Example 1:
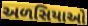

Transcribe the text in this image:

અળસિયાઓ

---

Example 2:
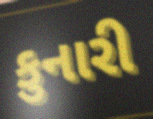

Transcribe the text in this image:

કુનારી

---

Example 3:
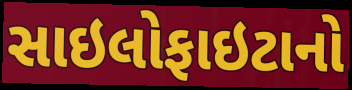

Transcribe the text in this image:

સાઇલોફાઇટાનો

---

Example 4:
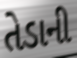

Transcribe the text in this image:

તેડાની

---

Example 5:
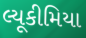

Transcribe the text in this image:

લ્યૂકીમિયા